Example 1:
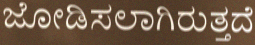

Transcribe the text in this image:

ಜೋಡಿಸಲಾಗಿರುತ್ತದೆ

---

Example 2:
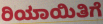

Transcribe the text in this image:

ರಿಯಾಯಿತಿಗೆ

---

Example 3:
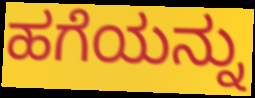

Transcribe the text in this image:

ಹಗೆಯನ್ನು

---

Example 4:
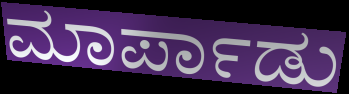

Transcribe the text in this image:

ಮಾರ್ಪಾಡು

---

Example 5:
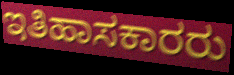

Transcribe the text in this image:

ಇತಿಹಾಸಕಾರರು